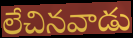
లేచినవాడు